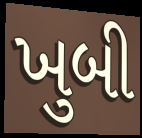
ખુબી